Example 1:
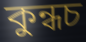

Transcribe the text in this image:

কুন্ধচ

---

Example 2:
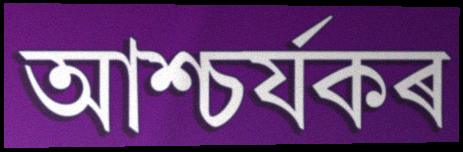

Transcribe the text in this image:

আশ্চৰ্যকৰ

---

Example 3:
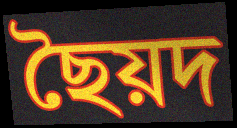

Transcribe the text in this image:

ছৈয়দ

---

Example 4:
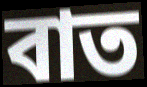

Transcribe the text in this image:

বাত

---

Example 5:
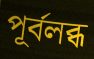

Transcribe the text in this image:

পূৰ্বলব্ধ